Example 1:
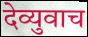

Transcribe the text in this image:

देव्युवाच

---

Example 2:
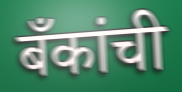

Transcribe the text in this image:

बँकांची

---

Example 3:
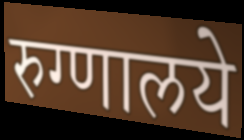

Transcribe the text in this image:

रुग्णालये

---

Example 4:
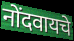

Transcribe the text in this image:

नोंदवायचे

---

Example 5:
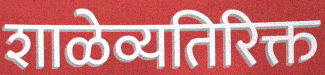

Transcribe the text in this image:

शाळेव्यतिरिक्त